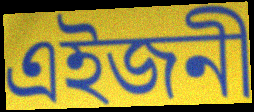
এইজনী